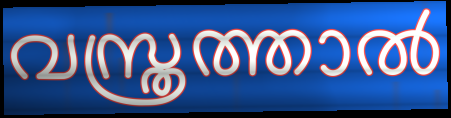
വസ്ത്രത്താൽ